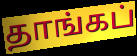
தாங்கப்